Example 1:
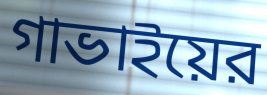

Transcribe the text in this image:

গাভাইয়ের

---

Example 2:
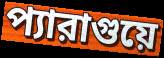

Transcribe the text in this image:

প্যারাগুয়ে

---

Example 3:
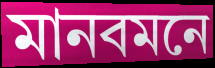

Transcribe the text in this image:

মানবমনে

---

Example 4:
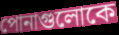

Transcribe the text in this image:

পোনাগুলোকে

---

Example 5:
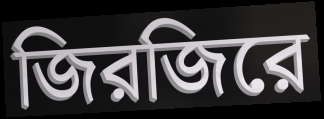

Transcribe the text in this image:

জিরজিরে